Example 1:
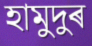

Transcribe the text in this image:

হামুদুৰ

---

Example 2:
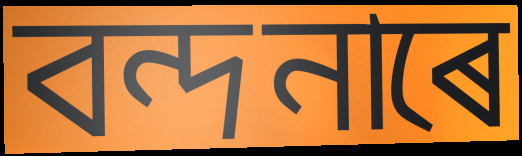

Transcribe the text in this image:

বন্দনাৰে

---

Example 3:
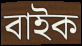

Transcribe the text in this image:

বাইক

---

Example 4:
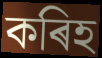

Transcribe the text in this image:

কৰিহ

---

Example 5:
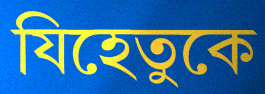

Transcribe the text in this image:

যিহেতুকে